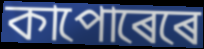
কাপোৰেৰে